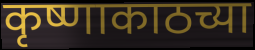
कृष्णाकाठच्या